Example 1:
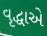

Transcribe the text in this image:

વૃદ્ધાએ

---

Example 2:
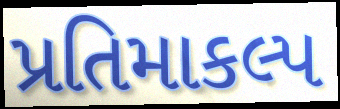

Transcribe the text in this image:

પ્રતિમાકલ્પ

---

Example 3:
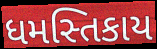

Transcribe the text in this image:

ધમસ્તિકાય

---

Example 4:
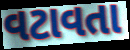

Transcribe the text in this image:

વટાવતા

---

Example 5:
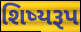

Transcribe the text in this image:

શિષ્યરૂપ